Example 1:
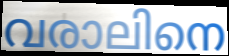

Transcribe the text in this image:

വരാലിനെ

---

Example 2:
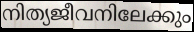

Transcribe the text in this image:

നിത്യജീവനിലേക്കും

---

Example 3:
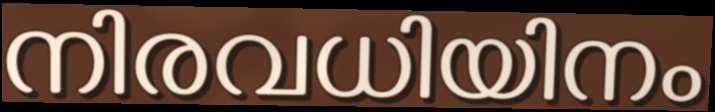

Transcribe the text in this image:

നിരവധിയിനം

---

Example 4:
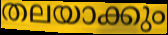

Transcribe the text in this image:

തലയാക്കും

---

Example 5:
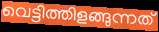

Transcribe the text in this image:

വെട്ടിത്തിളങ്ങുന്നത്